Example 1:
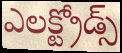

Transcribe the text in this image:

ఎలక్ట్రోడ్స్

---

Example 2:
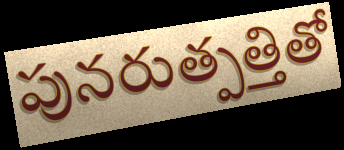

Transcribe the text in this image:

పునరుత్పత్తితో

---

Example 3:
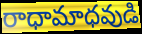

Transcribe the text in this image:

రాధామాధవుడి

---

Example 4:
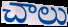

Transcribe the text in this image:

చాలు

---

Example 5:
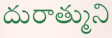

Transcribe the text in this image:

దురాత్ముని